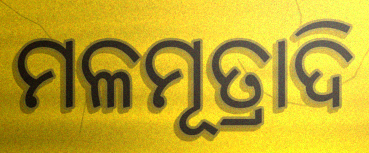
ମଳମୂତ୍ରାଦି